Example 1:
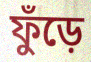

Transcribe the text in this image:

ফুঁড়ে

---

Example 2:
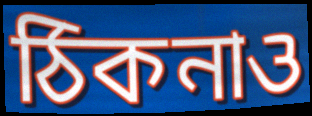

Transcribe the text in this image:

ঠিকনাও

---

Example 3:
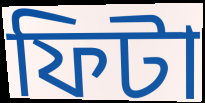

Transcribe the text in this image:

ফিটা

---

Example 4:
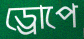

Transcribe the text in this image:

ড্ৰোপে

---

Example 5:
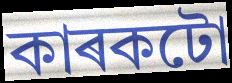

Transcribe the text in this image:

কাৰকটো